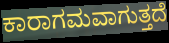
ಕಾರಾಗಮವಾಗುತ್ತದೆ